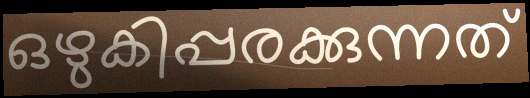
ഒഴുകിപ്പരക്കുന്നത്